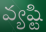
వ్యష్టి